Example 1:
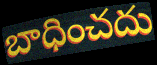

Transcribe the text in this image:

బాధించదు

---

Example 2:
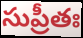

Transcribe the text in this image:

సుప్రీతః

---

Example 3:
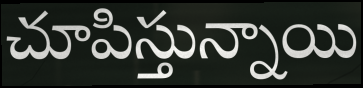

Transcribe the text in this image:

చూపిస్తున్నాయి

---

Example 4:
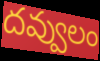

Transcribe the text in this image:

దవ్వులం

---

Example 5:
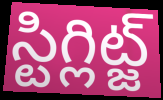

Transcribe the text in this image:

స్టిగ్లిట్జ్